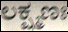
ಲಕ್ಷ್ಮಣಃ